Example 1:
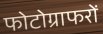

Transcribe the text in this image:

फोटोग्राफरों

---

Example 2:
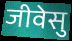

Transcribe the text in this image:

जीवेसु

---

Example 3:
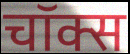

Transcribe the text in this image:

चॉक्स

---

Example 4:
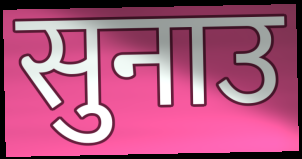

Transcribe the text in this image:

सुनाउ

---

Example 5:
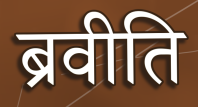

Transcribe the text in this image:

ब्रवीति